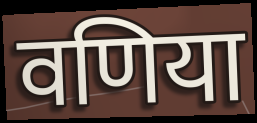
वणिया